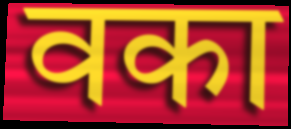
वका